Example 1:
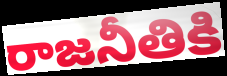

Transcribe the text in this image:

రాజనీతికి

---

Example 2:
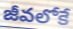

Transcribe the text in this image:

జీవలోకే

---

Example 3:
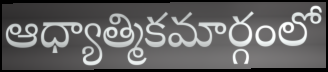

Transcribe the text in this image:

ఆధ్యాత్మికమార్గంలో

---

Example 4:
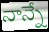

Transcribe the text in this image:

నాన్నే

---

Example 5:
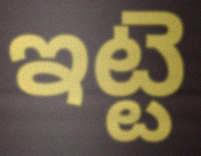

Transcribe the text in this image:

ఇట్టె